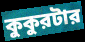
কুকুরটার